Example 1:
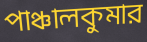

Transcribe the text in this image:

পাঞ্চালকুমার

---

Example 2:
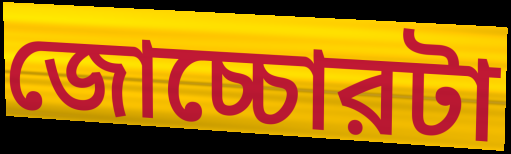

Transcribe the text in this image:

জোচ্চোরটা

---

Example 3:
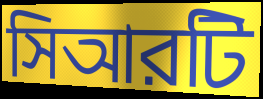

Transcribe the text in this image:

সিআরটি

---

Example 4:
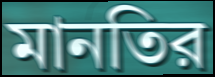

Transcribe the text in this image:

মানতির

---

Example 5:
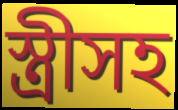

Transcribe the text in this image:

স্ত্রীসহ